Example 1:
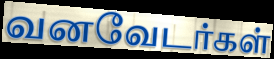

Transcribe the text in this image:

வனவேடர்கள்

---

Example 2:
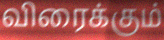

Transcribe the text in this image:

விரைக்கும்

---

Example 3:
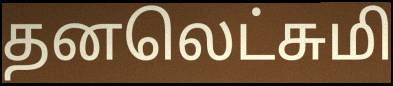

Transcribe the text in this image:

தனலெட்சுமி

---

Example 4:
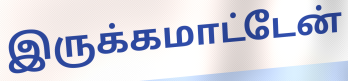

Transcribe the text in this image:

இருக்கமாட்டேன்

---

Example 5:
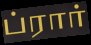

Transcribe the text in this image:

ப்ரார்